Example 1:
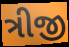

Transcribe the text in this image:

ત્રીજી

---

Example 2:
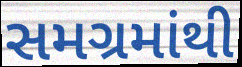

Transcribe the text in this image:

સમગ્રમાંથી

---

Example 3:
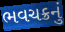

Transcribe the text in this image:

ભવચક્રનું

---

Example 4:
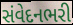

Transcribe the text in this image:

સંવેદનભરી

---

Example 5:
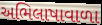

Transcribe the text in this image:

અભિલાષાવાળા